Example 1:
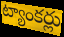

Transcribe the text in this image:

ట్యాంకర్లు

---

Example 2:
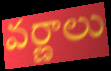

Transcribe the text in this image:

వర్ణాలు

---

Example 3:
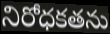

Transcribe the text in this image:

నిరోధకతను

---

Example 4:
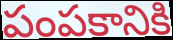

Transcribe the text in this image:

పంపకానికి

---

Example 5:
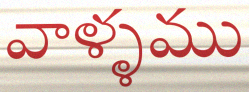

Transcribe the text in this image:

వాళ్ళము